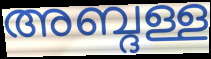
അബ്ദള്ള